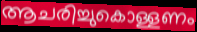
ആചരിച്ചുകൊള്ളണം